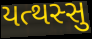
યત્થસ્સુ